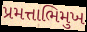
પ્રમત્તાભિમુખ